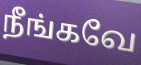
நீங்கவே